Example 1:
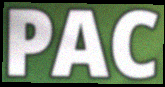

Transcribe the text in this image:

PAC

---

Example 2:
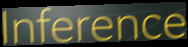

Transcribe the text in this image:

Inference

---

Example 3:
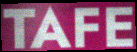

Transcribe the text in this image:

TAFE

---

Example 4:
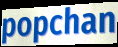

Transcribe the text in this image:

popchan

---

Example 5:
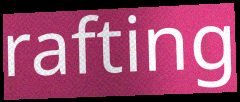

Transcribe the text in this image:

rafting